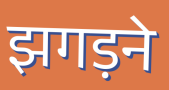
झगड़ने